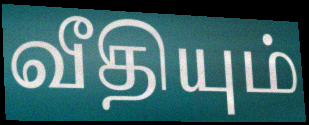
வீதியும்